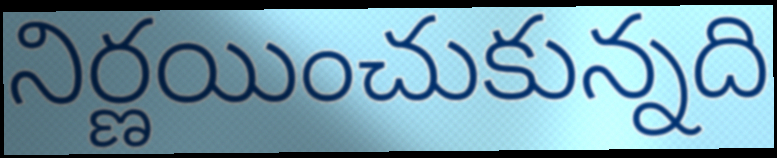
నిర్ణయించుకున్నది